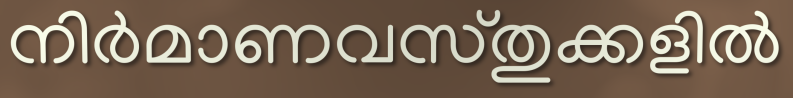
നിർമാണവസ്തുക്കളിൽ